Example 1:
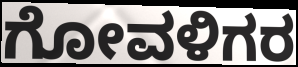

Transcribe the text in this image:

ಗೋವಳಿಗರ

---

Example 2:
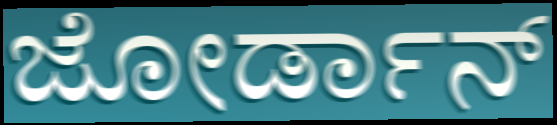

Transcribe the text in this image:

ಜೋರ್ಡಾನ್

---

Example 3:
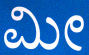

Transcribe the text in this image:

ಮೀ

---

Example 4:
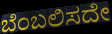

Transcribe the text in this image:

ಬೆಂಬಲಿಸದೇ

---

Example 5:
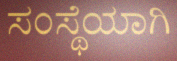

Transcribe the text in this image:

ಸಂಸ್ಥೆಯಾಗಿ